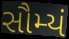
સૌમ્યં